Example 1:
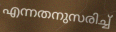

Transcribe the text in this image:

എന്നതനുസരിച്ച്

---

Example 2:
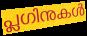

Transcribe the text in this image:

പ്ലഗിനുകൾ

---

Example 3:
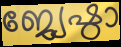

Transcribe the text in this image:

ജ്യേഷ്ഠാ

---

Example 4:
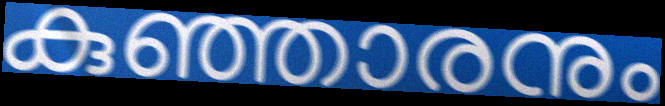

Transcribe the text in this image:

കുഞ്ഞാരനും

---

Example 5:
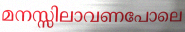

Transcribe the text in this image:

മനസ്സിലാവണപോലെ